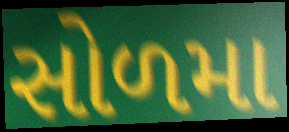
સોળમા